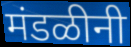
मंडळीनी